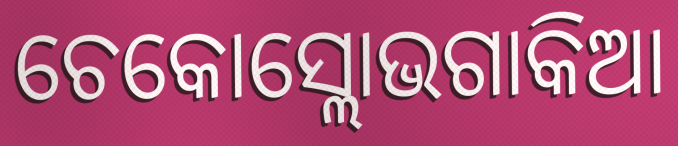
ଚେକୋସ୍ଲୋଭଗାକିଆ